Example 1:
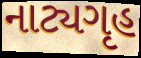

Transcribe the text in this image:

નાટ્યગૃહ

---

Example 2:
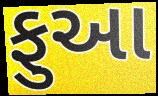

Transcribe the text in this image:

ફુઆ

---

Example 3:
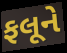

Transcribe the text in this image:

ફલૂને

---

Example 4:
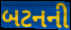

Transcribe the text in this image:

બટનની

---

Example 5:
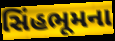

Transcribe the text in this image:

સિંહભૂમના